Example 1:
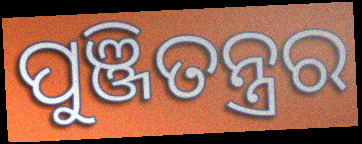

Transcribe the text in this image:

ପୁଞ୍ଜିତନ୍ତ୍ରର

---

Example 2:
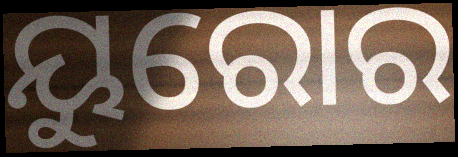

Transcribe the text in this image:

ୟୁରୋର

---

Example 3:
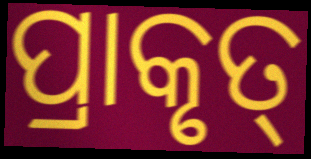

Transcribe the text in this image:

ପ୍ରାକୃତ୍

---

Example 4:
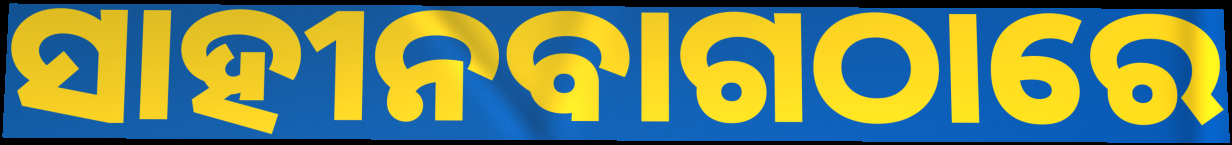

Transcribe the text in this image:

ସାହୀନବାଗଠାରେ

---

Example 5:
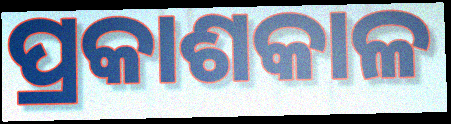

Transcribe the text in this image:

ପ୍ରକାଶକାଳ